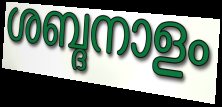
ശബ്ദനാളം